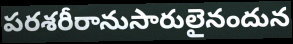
పరశరీరానుసారులైనందున